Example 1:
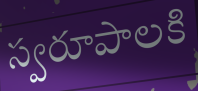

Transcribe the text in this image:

స్వరూపాలకి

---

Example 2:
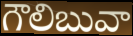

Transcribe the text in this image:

గౌలిబువా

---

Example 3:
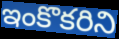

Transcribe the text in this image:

ఇంకొకరిని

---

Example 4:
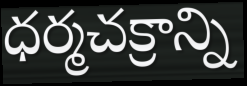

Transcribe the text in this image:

ధర్మచక్రాన్ని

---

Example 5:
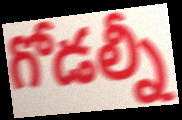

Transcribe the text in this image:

గోడల్నీ